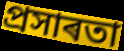
প্ৰসাৰতা